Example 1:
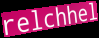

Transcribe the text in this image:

relchhel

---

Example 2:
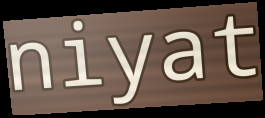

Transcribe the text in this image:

niyat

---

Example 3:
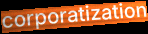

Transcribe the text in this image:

corporatization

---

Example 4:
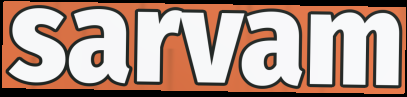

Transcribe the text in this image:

sarvam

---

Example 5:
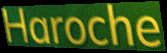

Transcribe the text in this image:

Haroche